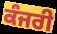
ਕੰਜਰੀ